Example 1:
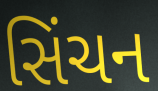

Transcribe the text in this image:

સિંચન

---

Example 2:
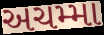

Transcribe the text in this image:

અચમ્મા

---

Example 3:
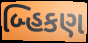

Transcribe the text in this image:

બ્હિકણ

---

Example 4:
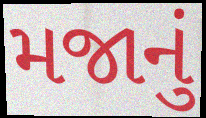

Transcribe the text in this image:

મજાનું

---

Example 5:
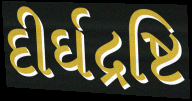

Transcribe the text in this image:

દીર્ઘદ્રષ્ટિ